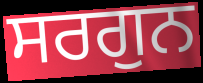
ਸਰਗੁਨ